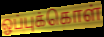
ஒப்புக்கொள்